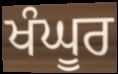
ਖੰਘੂਰ